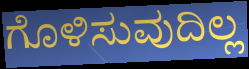
ಗೊಳಿಸುವುದಿಲ್ಲ